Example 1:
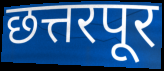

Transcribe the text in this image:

छत्तरपूर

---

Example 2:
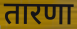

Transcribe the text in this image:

तारणा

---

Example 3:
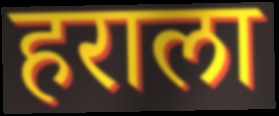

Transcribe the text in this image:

हराला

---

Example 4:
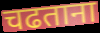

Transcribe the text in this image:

चढताना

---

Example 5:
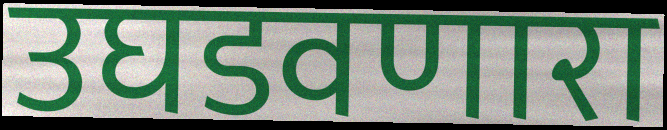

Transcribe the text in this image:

उघडवणारा